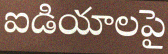
ఐడియాలపై